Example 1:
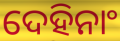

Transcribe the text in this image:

ଦେହିନାଂ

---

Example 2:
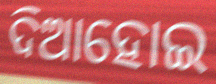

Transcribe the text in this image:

ଦିଆହୋଇ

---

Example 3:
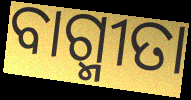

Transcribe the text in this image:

ବାଗ୍ମୀତା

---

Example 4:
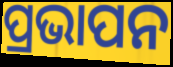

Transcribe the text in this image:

ପ୍ରଭାପନ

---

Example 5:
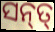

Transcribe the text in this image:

ସନ୍‌ତ୍